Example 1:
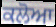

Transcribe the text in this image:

ਕਲੋਆ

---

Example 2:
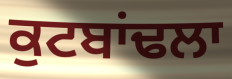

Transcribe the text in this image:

ਕੁਟਬਾਂਢਲਾ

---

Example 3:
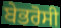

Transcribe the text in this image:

ਬੇਭਰੋਸੀ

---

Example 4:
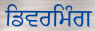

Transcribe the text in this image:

ਡਿਵਰਮਿੰਗ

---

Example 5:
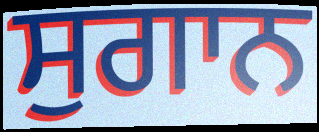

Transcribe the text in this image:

ਸੁਗਾਨ